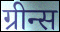
ग्रीन्स